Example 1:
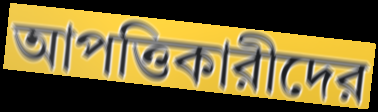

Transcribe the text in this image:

আপত্তিকারীদের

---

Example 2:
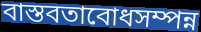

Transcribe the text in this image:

বাস্তবতাবোধসম্পন্ন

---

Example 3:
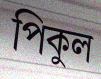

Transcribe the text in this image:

পিকুল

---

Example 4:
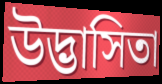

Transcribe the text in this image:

উদ্ভাসিতা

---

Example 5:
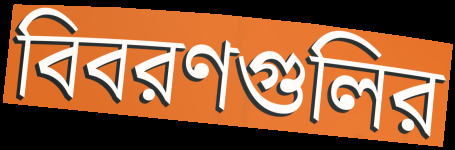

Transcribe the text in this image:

বিবরণগুলির